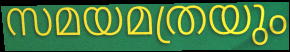
സമയമത്രയും